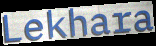
Lekhara